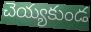
చెయ్యకుండ